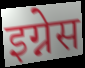
इग्नेस